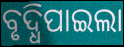
ବୃଦ୍ଧିପାଇଲା